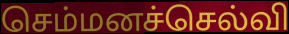
செம்மனச்செல்வி